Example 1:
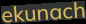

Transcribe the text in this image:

ekunach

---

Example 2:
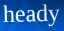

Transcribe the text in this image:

heady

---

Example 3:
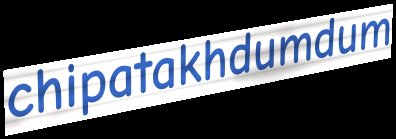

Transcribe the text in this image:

chipatakhdumdum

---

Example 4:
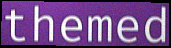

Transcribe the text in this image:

themed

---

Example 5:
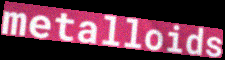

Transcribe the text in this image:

metalloids